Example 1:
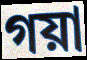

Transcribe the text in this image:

গয়া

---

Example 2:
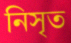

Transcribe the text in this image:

নিসৃত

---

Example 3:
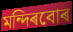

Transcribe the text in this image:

মন্দিৰবোৰ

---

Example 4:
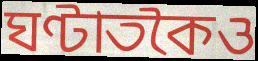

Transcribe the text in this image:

ঘণ্টাতকৈও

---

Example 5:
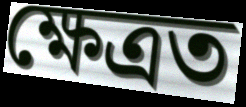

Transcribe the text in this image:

ক্ষেত্ৰত